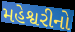
મહેશ્વરીનો